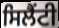
ਸਿਲੈਂਟੀ